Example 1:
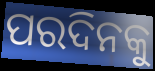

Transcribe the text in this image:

ପରଦିନକୁ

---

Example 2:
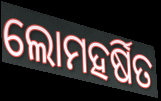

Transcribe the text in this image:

ଲୋମହର୍ଷିତ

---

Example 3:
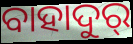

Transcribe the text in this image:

ବାହାଦୁର୍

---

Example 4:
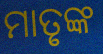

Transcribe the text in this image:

ମାତୃଙ୍କ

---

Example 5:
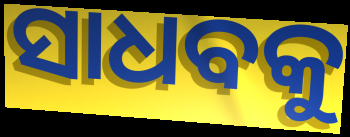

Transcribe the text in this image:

ସାଧବକୁ